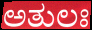
ಅತುಲಃ